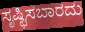
ಸೃಷ್ಟಿಸಬಾರದು